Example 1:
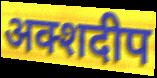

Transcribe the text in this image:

अक्शदीप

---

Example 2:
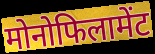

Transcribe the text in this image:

मोनोफिलामेंट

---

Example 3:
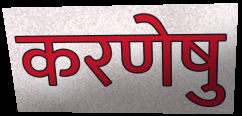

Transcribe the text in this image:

करणेषु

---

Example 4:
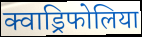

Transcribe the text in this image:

क्वाड्रिफोलिया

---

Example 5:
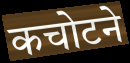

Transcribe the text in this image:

कचोटने